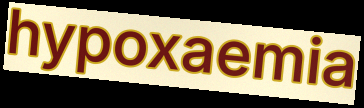
hypoxaemia